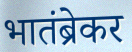
भातंब्रेकर